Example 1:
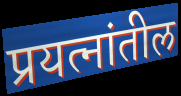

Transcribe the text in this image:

प्रयत्नांतील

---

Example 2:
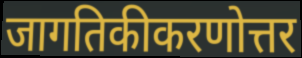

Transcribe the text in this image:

जागतिकीकरणोत्तर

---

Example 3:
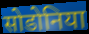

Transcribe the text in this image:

सोडोनिया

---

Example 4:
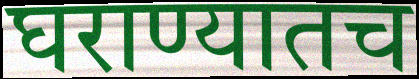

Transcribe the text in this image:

घराण्यातच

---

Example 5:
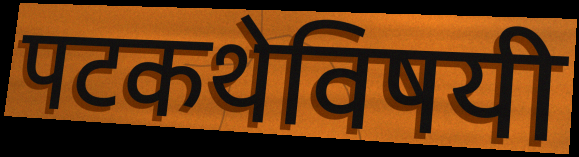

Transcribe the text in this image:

पटकथेविषयी